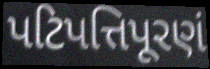
પટિપત્તિપૂરણં